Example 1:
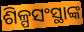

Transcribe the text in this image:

ଶିଳ୍ପସଂସ୍ଥାଙ୍କ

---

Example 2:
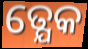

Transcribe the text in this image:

ତ୍ଯେକ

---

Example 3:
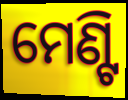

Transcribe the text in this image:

ମେଣ୍ଟି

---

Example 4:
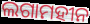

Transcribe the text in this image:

ଲଗାମହୀନ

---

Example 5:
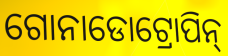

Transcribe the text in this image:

ଗୋନାଡୋଟ୍ରୋପିନ୍